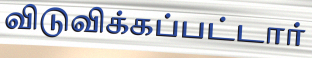
விடுவிக்கப்பட்டார்